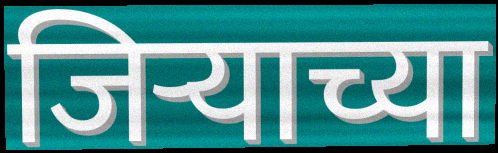
जिऱ्याच्या